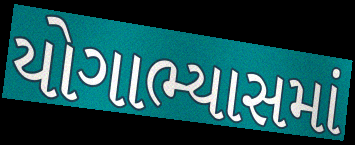
યોગાભ્યાસમાં